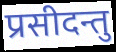
प्रसीदन्तु